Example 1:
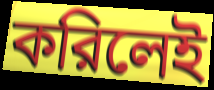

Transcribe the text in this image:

করিলেই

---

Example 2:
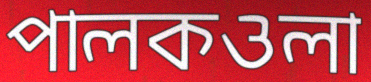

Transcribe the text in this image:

পালকওলা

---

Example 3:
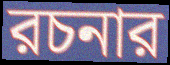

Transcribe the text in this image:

রচনার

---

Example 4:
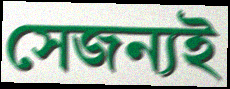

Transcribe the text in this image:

সেজন্যই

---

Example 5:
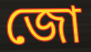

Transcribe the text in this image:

জো